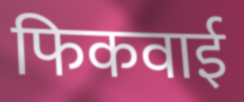
फिकवाई